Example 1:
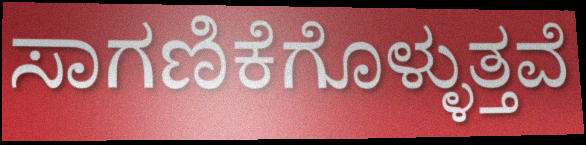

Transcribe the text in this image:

ಸಾಗಣಿಕೆಗೊಳ್ಳುತ್ತವೆ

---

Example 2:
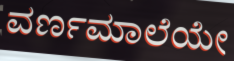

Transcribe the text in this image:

ವರ್ಣಮಾಲೆಯೇ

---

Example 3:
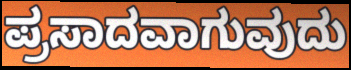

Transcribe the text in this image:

ಪ್ರಸಾದವಾಗುವುದು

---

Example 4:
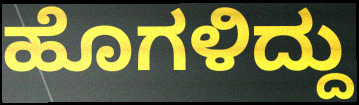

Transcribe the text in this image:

ಹೊಗಳಿದ್ದು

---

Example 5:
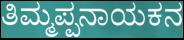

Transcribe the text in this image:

ತಿಮ್ಮಪ್ಪನಾಯಕನ